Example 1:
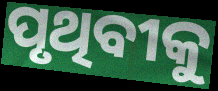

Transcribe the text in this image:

ପୃଥିବୀକୁ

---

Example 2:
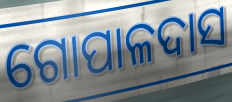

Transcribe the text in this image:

ଗୋପାଳଦାସ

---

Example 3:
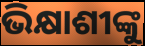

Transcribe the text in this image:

ଭିକ୍ଷାଶୀଙ୍କୁ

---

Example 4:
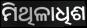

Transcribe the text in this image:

ମିଥିଳାଧିଶ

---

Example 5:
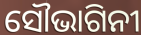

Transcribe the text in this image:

ସୌଭାଗିନୀ